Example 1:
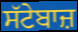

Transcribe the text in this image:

ਸੱਟੇਬਾਜ਼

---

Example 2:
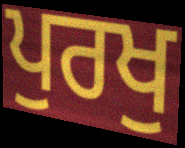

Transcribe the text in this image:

ਪੁਰਖੁ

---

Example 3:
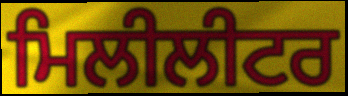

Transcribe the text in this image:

ਮਿਲੀਲੀਟਰ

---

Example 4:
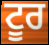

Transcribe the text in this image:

ਟੂਰ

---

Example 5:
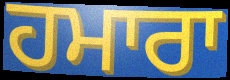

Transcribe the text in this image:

ਹਮਾਰਾ